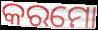
କରମୋ